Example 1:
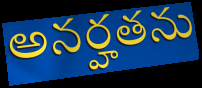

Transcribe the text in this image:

అనర్హతను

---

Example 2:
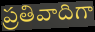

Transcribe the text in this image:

ప్రతివాదిగా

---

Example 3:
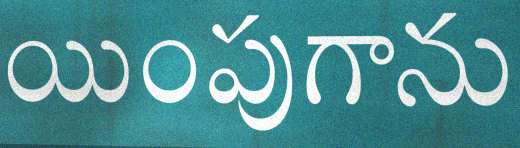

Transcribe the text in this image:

యింపుగాను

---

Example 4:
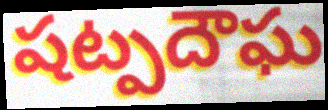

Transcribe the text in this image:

షట్పదౌఘ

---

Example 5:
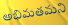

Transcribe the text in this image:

అభిమతమని